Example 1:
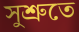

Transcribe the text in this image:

সুশ্ৰুতে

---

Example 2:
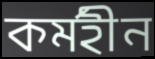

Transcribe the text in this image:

কৰ্মহীন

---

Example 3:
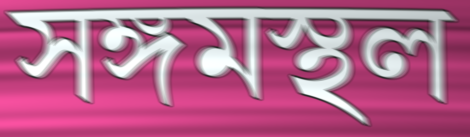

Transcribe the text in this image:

সঙ্গমস্থল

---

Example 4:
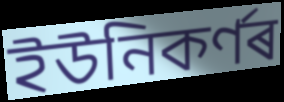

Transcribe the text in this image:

ইউনিকৰ্ণৰ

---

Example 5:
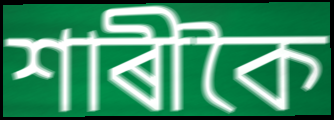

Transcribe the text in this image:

শাৰীকৈ